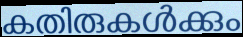
കതിരുകൾക്കും